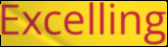
Excelling